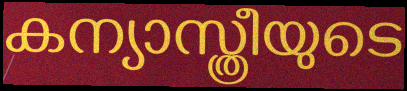
കന്യാസ്ത്രീയുടെ